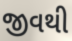
જીવથી